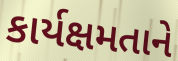
કાર્યક્ષમતાને